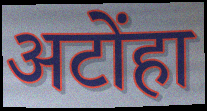
अटोंहा